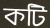
কটি